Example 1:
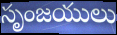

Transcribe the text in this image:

సృంజయులు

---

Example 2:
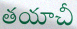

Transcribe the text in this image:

తయాచీ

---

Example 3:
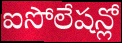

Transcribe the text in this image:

ఐసోలేషన్లో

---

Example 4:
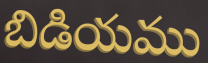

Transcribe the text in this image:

బిడియము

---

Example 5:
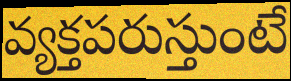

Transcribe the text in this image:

వ్యక్తపరుస్తుంటే